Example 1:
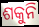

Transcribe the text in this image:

ଶକୁନି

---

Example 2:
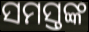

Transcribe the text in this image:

ସମସ୍ତଙ୍କ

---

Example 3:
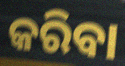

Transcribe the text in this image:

କରିବା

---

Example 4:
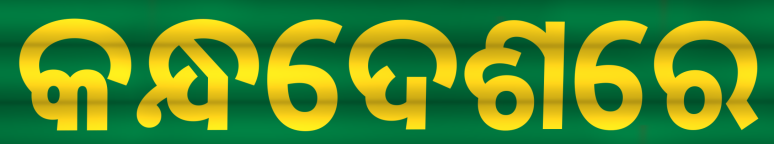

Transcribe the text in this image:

କନ୍ଧଦେଶରେ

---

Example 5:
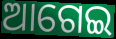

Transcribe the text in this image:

ଆଗେଇ